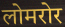
लोमरोर